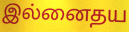
இல்னைதய